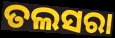
ତଲସରା